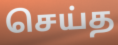
செய்த